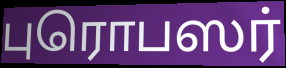
புரொபஸர்